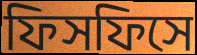
ফিসফিসে